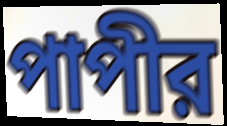
পাপীর